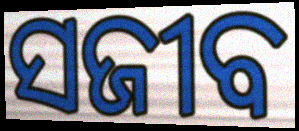
ସଜୀବ